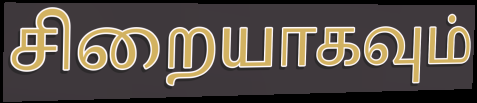
சிறையாகவும்